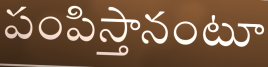
పంపిస్తానంటూ